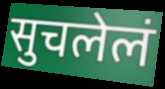
सुचलेलं